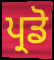
ਪ੍ਰਡੋ